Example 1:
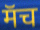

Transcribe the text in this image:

मॅच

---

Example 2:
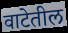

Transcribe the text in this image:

वाटेतील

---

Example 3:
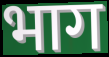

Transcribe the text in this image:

भाग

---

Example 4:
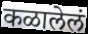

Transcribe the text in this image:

कळालेलं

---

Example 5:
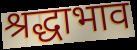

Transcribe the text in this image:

श्रद्धाभाव